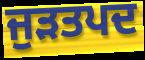
ਜੁੜਤਪਦ